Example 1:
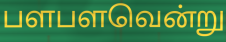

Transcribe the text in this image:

பளபளவென்று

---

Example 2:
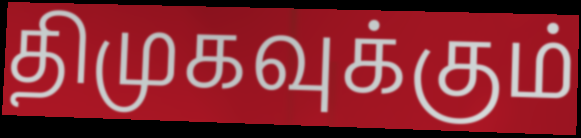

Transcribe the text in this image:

திமுகவுக்கும்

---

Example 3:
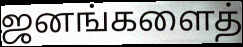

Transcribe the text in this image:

ஜனங்களைத்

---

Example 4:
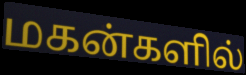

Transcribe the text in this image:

மகன்களில்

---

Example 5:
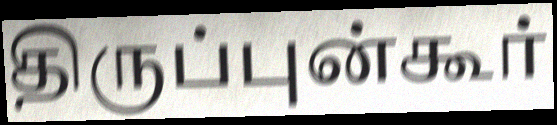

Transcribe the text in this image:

திருப்புன்கூர்